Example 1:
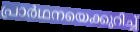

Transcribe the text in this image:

പ്രാർഥനയെക്കുറിച്ച്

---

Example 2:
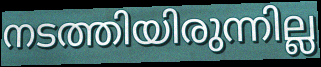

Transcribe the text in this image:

നടത്തിയിരുന്നില്ല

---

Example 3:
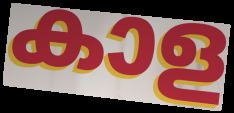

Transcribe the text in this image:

കാള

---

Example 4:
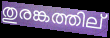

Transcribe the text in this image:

തുരങ്കത്തില്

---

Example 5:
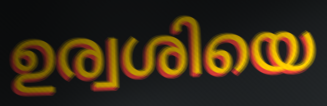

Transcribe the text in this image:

ഉര്വശിയെ